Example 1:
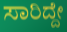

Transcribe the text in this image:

ಸಾರಿದ್ದೇ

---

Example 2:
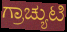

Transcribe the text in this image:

ಗ್ರಾಚ್ಯುಟಿ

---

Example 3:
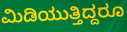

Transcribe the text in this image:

ಮಿಡಿಯುತ್ತಿದ್ದರೂ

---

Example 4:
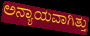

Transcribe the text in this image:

ಅನ್ಯಾಯವಾಗಿತ್ತು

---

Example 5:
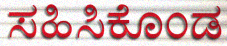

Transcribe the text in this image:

ಸಹಿಸಿಕೊಂಡ